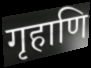
गृहाणि